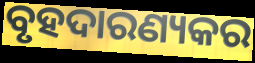
ବୃହଦାରଣ୍ୟକର